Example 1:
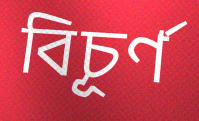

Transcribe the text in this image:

বিচূর্ণ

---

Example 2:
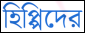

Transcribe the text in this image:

হিপ্পিদের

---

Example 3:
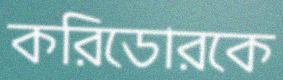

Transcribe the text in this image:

করিডোরকে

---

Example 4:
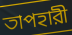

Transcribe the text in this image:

তাপহারী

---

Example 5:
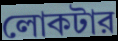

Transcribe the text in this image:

লোকটার